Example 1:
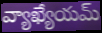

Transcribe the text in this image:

వ్యాఖ్యేయమ్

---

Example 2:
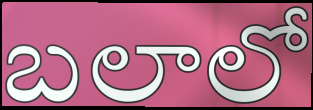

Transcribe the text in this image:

బలాలో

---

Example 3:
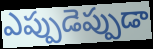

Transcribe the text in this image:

ఎప్పుడెప్పుడా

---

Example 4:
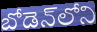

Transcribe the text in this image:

బోడెన్‌లోని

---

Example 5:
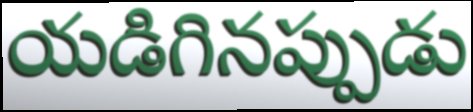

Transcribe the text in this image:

యడిగినప్పుడు